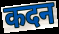
कदन